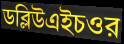
ডব্লিউএইচওর